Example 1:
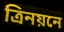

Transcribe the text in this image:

ত্রিনয়নে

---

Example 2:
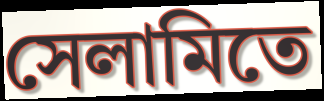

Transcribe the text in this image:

সেলামিতে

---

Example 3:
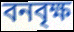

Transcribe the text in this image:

বনবৃক্ষ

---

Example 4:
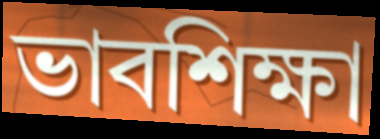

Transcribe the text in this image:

ভাবশিক্ষা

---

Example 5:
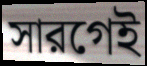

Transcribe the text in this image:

সারগেই